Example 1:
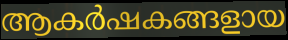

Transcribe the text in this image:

ആകർഷകങ്ങളായ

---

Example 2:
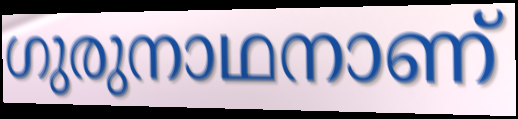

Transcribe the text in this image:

ഗുരുനാഥനാണ്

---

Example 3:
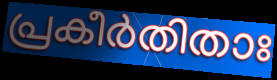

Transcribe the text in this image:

പ്രകീർതിതാഃ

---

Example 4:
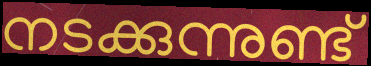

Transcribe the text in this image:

നടക്കുന്നുണ്ട്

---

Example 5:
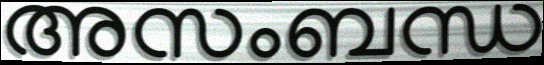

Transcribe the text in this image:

അസംബന്ധ